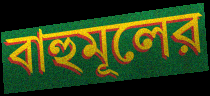
বাহুমূলের